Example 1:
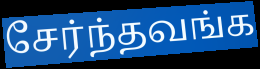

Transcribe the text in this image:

சேர்ந்தவங்க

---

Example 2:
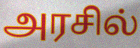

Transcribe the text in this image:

அரசில்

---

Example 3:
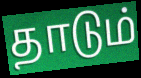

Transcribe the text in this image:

தாடும்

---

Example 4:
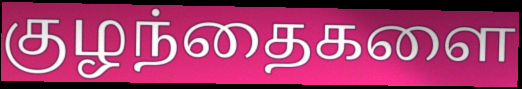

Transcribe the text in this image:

குழந்தைகளை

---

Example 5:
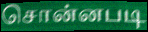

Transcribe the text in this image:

சொன்னபடி